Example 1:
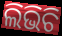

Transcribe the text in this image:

ଲିଭିଚି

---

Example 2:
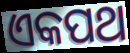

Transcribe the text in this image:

ଏକପଥ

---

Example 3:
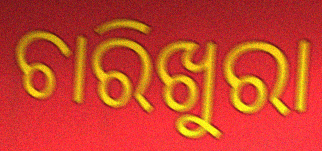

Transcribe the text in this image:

ଚାରିଖୁରା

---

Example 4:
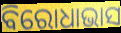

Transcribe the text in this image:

ବିରୋଧାଭାସ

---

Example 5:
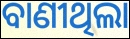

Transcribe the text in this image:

ବାଣୀଥିଲା